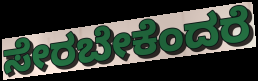
ಸೇರಬೇಕೆಂದರೆ